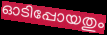
ഓടിപ്പോയതും